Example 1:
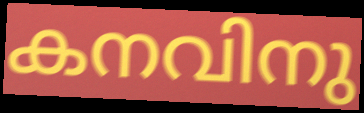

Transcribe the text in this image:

കനവിനു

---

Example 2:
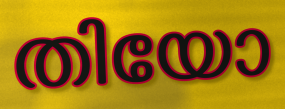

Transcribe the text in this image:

തിയോ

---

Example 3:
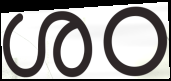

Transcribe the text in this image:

ശഠ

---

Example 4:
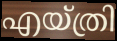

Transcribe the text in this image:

എയ്ത്രി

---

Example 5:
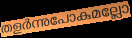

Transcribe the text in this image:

തളർന്നുപോകുമല്ലോ